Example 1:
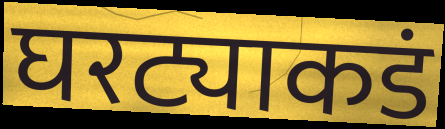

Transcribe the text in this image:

घरट्याकडं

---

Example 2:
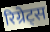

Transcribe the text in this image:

रिग्रेट्स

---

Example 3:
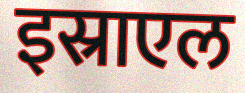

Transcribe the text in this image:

इस्राएल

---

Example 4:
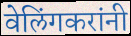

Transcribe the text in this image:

वेलिंगकरांनी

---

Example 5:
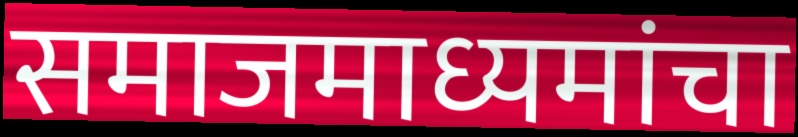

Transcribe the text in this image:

समाजमाध्यमांचा